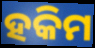
ହକିମ